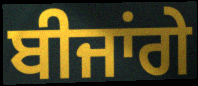
ਬੀਜਾਂਗੇ